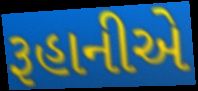
રૂહાનીએ